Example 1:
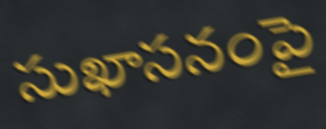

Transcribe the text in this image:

సుఖాసనంపై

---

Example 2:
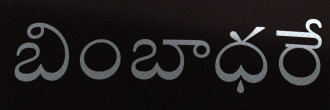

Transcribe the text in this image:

బింబాధరే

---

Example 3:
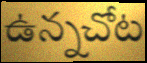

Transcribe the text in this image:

ఉన్నచోట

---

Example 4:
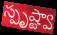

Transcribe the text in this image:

స్పృష్ట్వా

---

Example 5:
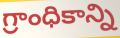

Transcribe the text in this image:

గ్రాంధికాన్ని